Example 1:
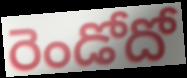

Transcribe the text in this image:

రెండోదో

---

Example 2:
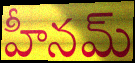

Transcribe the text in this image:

హీనమ్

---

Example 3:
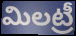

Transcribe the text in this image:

మిలట్రీ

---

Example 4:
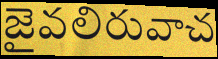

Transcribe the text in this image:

జైవలిరువాచ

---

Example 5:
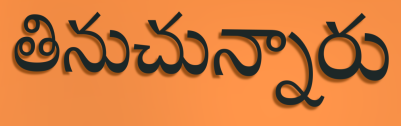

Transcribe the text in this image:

తినుచున్నారు